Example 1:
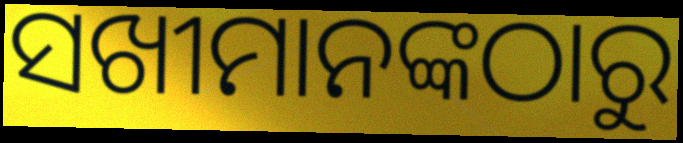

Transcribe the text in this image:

ସଖୀମାନଙ୍କଠାରୁ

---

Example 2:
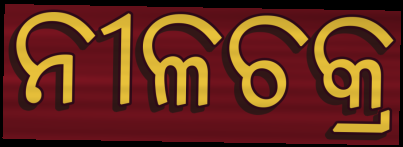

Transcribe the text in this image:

ନୀଳଚକ୍ର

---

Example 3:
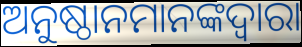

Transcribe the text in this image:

ଅନୁଷ୍ଠାନମାନଙ୍କଦ୍ଵାରା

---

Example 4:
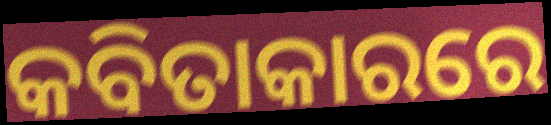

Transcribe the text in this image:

କବିତାକାରରେ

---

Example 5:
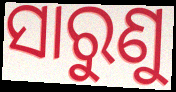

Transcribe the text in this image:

ସାରୁଣୁ